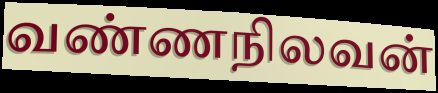
வண்ணநிலவன்